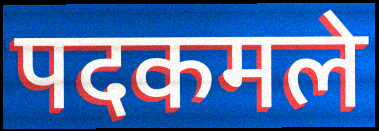
पदकमले